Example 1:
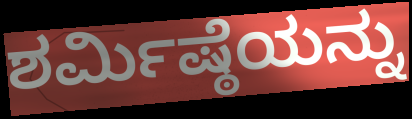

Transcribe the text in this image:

ಶರ್ಮಿಷ್ಠೆಯನ್ನು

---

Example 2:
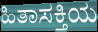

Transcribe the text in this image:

ಹಿತಾಸಕ್ತಿಯ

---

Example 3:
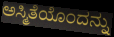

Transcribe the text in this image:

ಅಸ್ಮಿತೆಯೊಂದನ್ನು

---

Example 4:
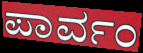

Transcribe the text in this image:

ಪಾರ್ವಂ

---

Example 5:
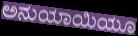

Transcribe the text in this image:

ಅನುಯಾಯಿಯೂ